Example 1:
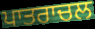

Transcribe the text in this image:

ਪਾਤਰਾਚਲ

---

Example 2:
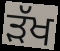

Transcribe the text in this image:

ੜੱਖ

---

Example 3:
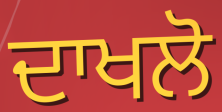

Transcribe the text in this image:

ਦਾਖਲੋ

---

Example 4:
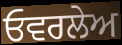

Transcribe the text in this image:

ਓਵਰਲੇਅ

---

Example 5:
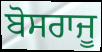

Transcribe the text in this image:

ਬੋਸਰਾਜੂ